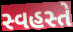
સ્વહસ્તે